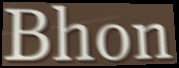
Bhon